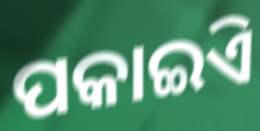
ପକାଇିଏ